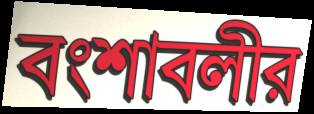
বংশাবলীর